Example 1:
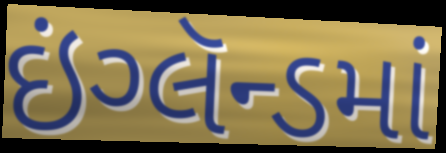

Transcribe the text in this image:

ઇંગ્લૅન્ડમાં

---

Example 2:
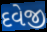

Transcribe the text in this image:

દવેજી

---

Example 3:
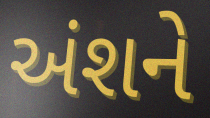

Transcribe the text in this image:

અંશને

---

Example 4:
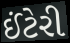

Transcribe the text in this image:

ઈંટેરી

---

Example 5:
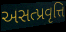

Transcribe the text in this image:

અસત્પ્રવૃત્તિ